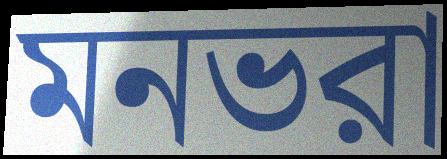
মনভরা